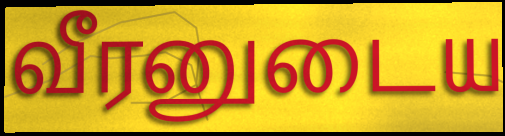
வீரனுடைய